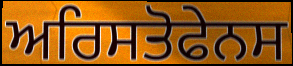
ਅਰਿਸਤੋਫੇਨਸ